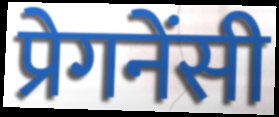
प्रेगनेंसी